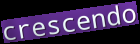
crescendo